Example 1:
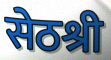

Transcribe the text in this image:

सेठश्री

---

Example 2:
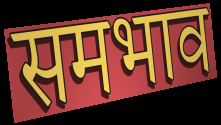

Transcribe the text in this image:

समभाव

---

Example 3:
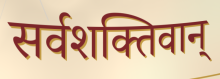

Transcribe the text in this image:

सर्वशक्तिवान्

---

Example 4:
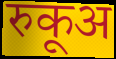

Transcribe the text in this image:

रुकूअ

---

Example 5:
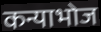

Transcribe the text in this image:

कन्याभोज